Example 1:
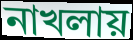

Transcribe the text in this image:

নাখলায়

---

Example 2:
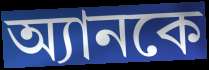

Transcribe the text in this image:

অ্যানকে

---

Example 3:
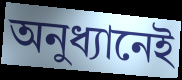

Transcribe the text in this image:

অনুধ্যানেই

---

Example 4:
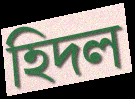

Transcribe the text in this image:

হিদল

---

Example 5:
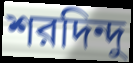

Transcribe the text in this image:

শরদিন্দু